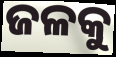
ଜଳକୁ